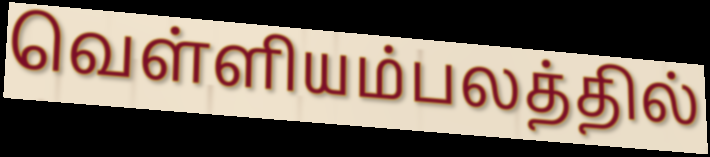
வெள்ளியம்பலத்தில்